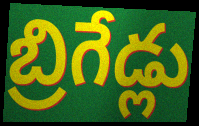
బ్రిగేడ్లు